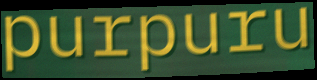
purpuru